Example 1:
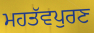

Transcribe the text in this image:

ਮਹਤੱਵਪੁਰਣ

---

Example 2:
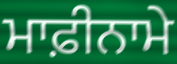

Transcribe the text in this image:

ਮਾਫ਼ੀਨਾਮੇ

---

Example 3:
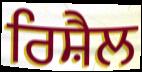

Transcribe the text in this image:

ਰਿਸ਼ੈਲ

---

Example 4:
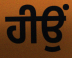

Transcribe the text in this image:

ਹੀਉਂ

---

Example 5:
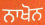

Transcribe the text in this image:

ਨਾਖੋਨ